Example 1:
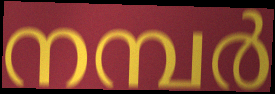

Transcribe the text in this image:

നമ്പർ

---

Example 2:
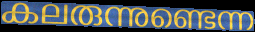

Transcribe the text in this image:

കലരുന്നുണ്ടെന്ന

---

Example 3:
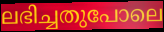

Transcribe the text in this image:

ലഭിച്ചതുപോലെ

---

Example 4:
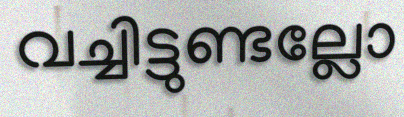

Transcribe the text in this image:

വച്ചിട്ടുണ്ടല്ലോ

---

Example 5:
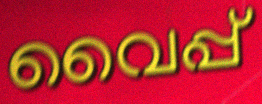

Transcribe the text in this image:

വൈപ്പ്